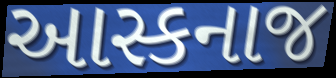
આસ્કનાજ